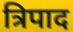
त्रिपाद